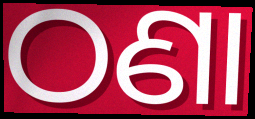
ଠଣା